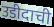
उडीदाची